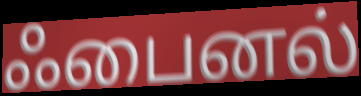
ஃபைனல்